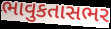
ભાવુકતાસભર